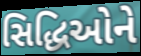
સિદ્ધિઓને